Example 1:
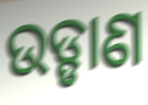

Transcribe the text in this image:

ଉଡ୍ଡାଣ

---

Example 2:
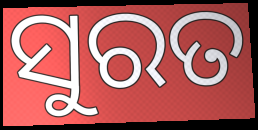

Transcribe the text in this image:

ସୁରତ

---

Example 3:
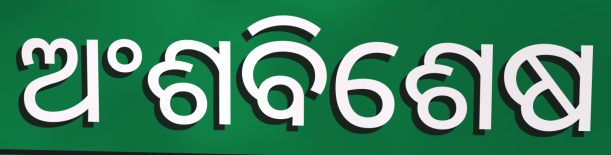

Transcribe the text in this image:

ଅଂଶବିଶେଷ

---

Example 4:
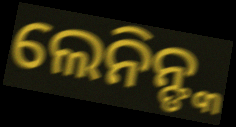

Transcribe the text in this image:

ଲେନିନ୍ଙ୍କ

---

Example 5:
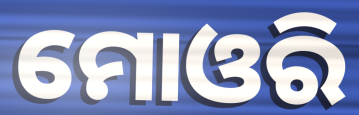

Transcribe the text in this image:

ମୋଓରି